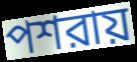
পশরায়